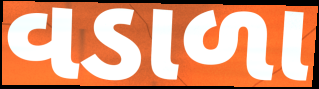
વડાળા